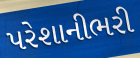
પરેશાનીભરી